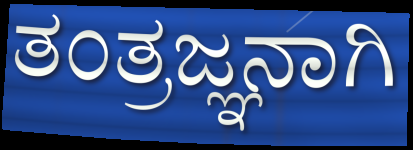
ತಂತ್ರಜ್ಞನಾಗಿ